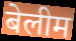
बेलीम